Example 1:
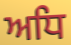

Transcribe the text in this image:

ਅਧਿ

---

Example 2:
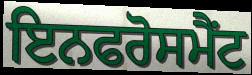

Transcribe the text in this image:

ਇਨਫਰੋਸਮੈਂਟ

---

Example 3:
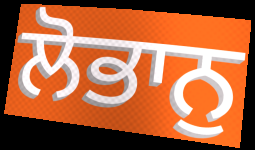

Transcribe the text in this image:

ਲੋਭਾਨੁ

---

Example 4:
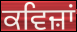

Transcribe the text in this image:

ਕਵਿਜ਼ਾਂ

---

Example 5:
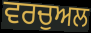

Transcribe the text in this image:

ਵਰਚੁਅਲ